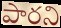
పారని